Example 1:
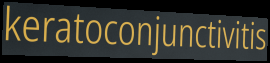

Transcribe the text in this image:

keratoconjunctivitis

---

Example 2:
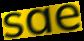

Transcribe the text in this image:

sae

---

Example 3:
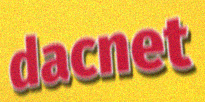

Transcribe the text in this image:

dacnet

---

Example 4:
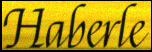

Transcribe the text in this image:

Haberle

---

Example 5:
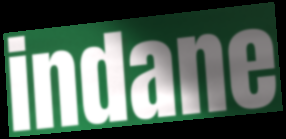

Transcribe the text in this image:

indane